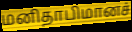
மனிதாபிமானச்